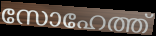
സോഹേത്ത്